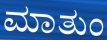
ಮಾತುಂ